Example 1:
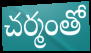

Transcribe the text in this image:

చర్మంతో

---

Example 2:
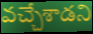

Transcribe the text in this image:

వచ్చేశాడని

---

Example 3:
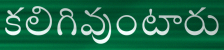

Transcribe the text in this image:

కలిగివుంటారు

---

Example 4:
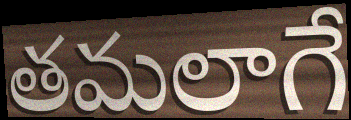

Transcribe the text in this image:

తమలాగే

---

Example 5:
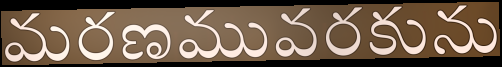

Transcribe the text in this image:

మరణమువరకును